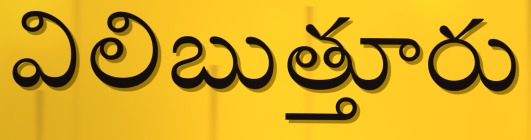
విలిబుత్తూరు